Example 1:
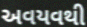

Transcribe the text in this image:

અવયવથી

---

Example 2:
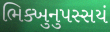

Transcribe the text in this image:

ભિક્ખુનુપસ્સયં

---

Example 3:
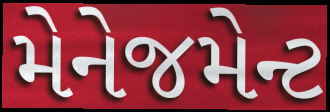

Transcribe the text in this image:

મેનેજમેન્ટ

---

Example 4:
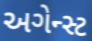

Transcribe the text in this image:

અગેન્સ્ટ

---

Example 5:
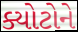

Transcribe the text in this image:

ક્યોટોને